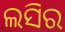
ଲସିର